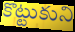
కొట్టుకుని